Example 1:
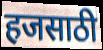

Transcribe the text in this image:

हजसाठी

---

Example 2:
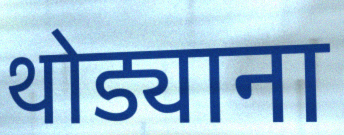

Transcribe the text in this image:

थोड्याना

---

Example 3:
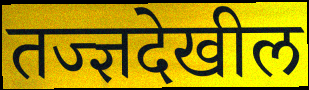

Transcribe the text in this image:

तज्ज्ञदेखील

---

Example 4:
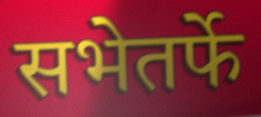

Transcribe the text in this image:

सभेतर्फे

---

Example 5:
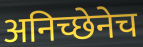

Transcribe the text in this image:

अनिच्छेनेच